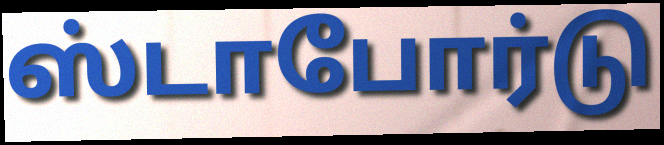
ஸ்டாபோர்டு